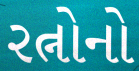
રત્નોનો